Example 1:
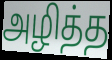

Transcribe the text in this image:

அழித்த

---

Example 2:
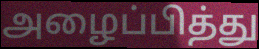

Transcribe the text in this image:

அழைப்பித்து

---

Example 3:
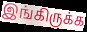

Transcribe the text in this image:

இங்கிருக்க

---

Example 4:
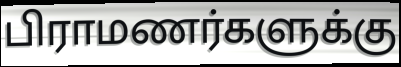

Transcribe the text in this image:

பிராமணர்களுக்கு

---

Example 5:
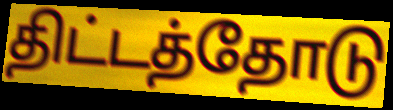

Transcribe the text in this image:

திட்டத்தோடு